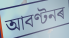
আবণ্টনৰ